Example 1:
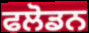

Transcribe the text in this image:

ਫਲੋਡਨ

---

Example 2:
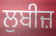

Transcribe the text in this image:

ਲੁਬੀਜ਼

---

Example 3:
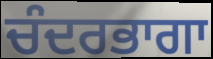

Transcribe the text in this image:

ਚੰਦਰਭਾਗਾ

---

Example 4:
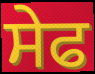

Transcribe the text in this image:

ਸੇਫ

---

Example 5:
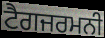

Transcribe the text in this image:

ਟੈਗਜਰਮਨੀ